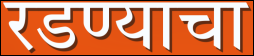
रडण्याचा